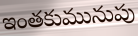
ఇంతకుమునుపు